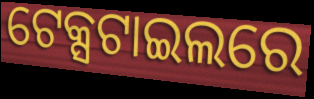
ଟେକ୍ସଟାଇଲରେ